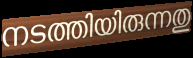
നടത്തിയിരുന്നതു